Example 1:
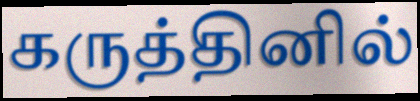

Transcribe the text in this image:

கருத்தினில்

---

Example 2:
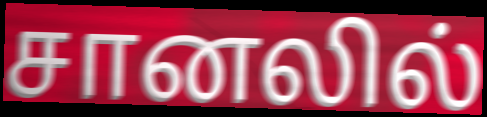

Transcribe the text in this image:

சானலில்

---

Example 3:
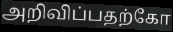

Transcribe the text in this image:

அறிவிப்பதற்கோ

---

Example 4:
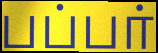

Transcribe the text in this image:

பப்பர்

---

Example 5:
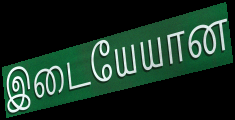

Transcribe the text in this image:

இடையேயான